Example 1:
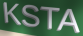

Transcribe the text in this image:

KSTA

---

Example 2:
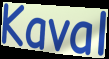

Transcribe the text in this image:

Kaval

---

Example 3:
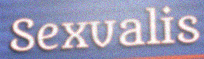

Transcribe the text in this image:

Sexualis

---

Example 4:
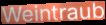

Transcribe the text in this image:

Weintraub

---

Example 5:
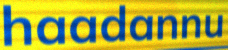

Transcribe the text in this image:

haadannu